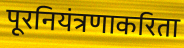
पूरनियंत्रणाकरिता